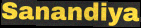
Sanandiya